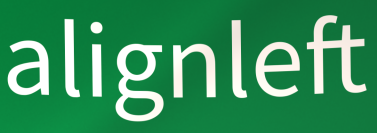
alignleft